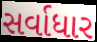
સર્વાધાર